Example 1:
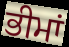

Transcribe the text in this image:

ਭੀਮਾਂ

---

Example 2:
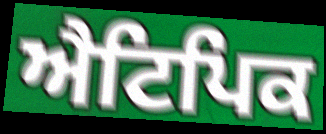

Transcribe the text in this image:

ਐਟਿਪਿਕ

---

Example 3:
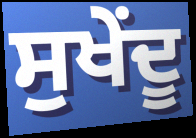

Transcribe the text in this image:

ਸੁਖੇਂਦੂ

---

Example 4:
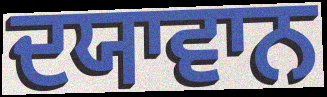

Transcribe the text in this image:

ਦਯਾਵਾਨ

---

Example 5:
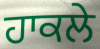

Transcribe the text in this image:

ਹਾਕਲੇ